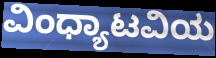
ವಿಂಧ್ಯಾಟವಿಯ